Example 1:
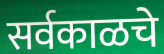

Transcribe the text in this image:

सर्वकाळचे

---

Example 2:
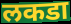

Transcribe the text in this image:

लकडा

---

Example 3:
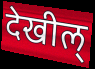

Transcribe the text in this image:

देखील्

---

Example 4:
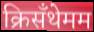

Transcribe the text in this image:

क्रिसँथेमम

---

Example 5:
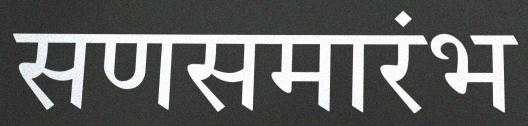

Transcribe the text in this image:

सणसमारंभ